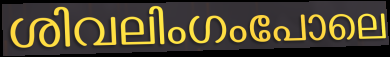
ശിവലിംഗംപോലെ